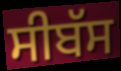
ਸੀਬੱਸ